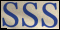
SSS